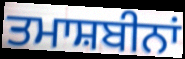
ਤਮਾਸ਼ਬੀਨਾਂ